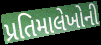
પ્રતિમાલેખોની